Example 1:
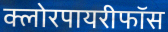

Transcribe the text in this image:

क्लोरपायरीफॉस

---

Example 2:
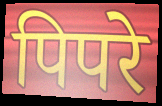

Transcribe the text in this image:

पिपरे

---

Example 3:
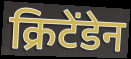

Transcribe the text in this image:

क्रिटेंडेन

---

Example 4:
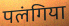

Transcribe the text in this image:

पलंगिया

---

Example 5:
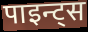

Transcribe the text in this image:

पाइन्ट्स